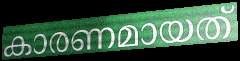
കാരണമായത്